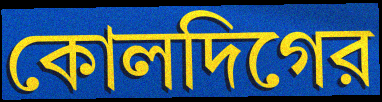
কোলদিগের